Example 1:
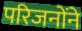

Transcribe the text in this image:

परिजनोंने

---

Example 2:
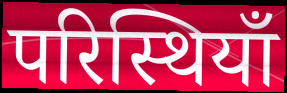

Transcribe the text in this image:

परिस्थियाँ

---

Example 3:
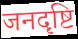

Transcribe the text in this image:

जनदृष्टि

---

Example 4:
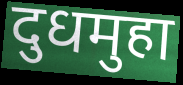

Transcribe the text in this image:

दुधमुहा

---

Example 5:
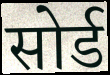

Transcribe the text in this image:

सोर्ड